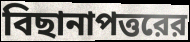
বিছানাপত্তরের